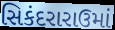
સિકંદરારાઉમાં